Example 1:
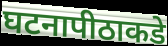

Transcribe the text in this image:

घटनापीठाकडे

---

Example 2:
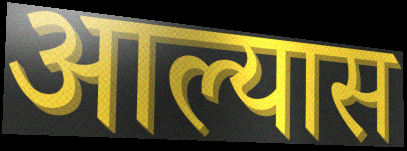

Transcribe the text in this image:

आल्यास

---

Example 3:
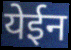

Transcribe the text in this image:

येईन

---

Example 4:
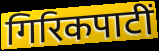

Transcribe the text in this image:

गिरिकपाटीं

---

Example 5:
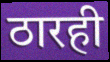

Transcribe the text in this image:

ठारही